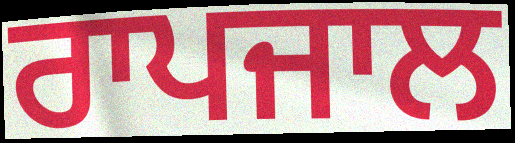
ਰਾਪਜਾਲ